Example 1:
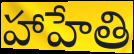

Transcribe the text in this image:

హాహేతి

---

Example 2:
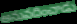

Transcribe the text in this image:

అనువదించాడు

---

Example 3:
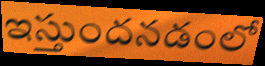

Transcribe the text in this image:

ఇస్తుందనడంలో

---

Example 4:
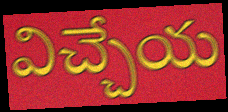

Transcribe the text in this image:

విచ్చేయ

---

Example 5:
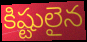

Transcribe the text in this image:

కిష్టులైన